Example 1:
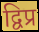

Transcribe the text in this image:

द्विप्र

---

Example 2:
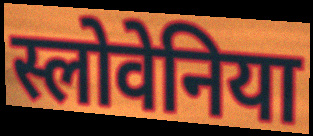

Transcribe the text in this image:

स्लोवेनिया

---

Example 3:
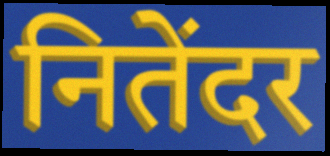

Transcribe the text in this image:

नितेंदर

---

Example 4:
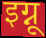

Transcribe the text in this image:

इग्नू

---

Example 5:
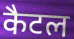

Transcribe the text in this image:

कैटल